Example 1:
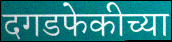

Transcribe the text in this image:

दगडफेकीच्या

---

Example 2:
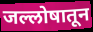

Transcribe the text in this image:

जल्लोषातून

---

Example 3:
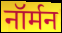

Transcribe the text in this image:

नॉर्मन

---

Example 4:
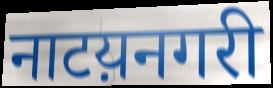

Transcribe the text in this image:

नाटय़नगरी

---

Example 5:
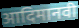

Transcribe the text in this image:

आदिमानवी